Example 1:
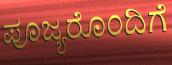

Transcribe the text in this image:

ಪೂಜ್ಯರೊಂದಿಗೆ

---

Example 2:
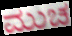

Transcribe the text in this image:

ಮುಚ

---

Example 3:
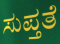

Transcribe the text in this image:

ಸುಪ್ತತೆ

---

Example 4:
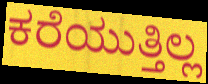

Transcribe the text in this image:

ಕರೆಯುತ್ತಿಲ್ಲ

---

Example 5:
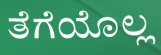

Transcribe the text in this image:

ತೆಗೆಯೊಲ್ಲ